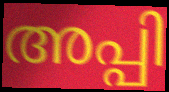
അപ്പി